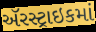
ઍરસ્ટ્રાઇકમાં